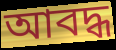
আবদ্ধ